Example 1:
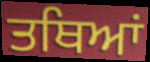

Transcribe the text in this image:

ਤਥਿਆਂ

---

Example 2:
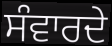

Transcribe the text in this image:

ਸੰਵਾਰਦੇ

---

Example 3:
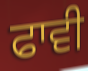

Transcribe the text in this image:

ਫਾਵੀ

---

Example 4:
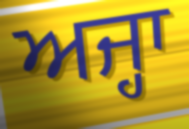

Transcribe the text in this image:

ਅਜ੍ਹਾ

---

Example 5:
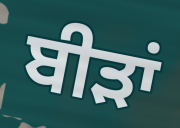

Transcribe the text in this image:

ਬੀੜਾਂ